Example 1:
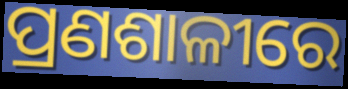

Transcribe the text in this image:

ପ୍ରଣଶାଳୀରେ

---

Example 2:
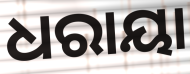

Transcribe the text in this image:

ଧରାୟା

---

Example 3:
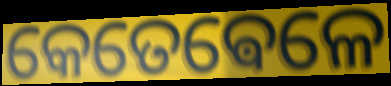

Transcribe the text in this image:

କେତେଵେଳେ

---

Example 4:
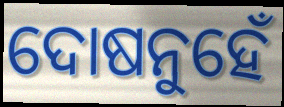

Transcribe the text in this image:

ଦୋଷନୁହେଁ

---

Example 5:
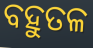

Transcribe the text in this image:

ବହୁତଳ